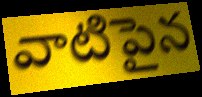
వాటిపైన